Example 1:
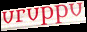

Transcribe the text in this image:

uruppu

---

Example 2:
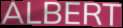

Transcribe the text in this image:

ALBERT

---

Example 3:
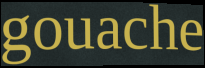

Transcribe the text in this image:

gouache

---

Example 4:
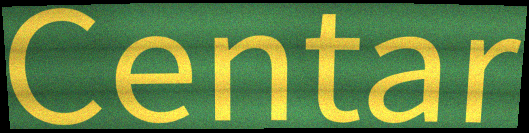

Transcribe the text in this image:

Centar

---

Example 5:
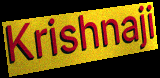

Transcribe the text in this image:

Krishnaji